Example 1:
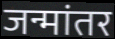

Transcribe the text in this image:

जन्मांतर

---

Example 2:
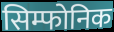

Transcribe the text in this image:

सिम्फोनिक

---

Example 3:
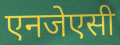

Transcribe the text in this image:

एनजेएसी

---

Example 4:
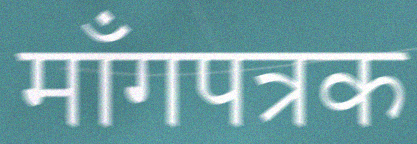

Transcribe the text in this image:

माँगपत्रक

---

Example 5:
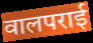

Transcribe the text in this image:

वालपराई